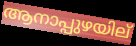
ആനാപ്പുഴയില്